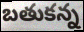
బతుకన్న